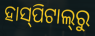
ହାସ୍‍ପିଟାଲ୍‍ରୁ